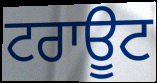
ਟਰਾਊਟ